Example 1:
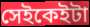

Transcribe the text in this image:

সেইকেইটা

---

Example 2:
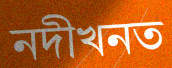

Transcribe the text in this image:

নদীখনত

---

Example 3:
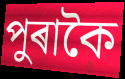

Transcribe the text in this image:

পুৰাকৈ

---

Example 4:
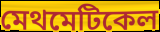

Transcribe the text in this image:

মেথমেটিকেল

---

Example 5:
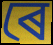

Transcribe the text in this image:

ৰে